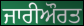
ਜਾਰੀਔਰਤ